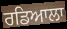
ਰਡਿਆਲਾ